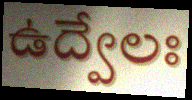
ఉద్వేలః